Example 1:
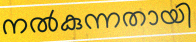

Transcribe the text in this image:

നൽകുന്നതായി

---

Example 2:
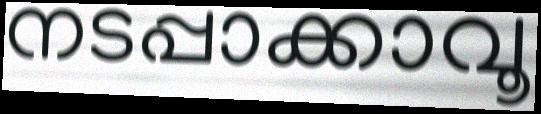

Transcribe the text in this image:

നടപ്പാക്കാവൂ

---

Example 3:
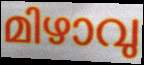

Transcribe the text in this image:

മിഴാവു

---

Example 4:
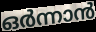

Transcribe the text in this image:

ഒർന്നാൻ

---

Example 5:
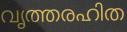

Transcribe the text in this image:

വൃത്തരഹിത